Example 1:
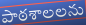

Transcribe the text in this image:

పాఠశాలలను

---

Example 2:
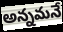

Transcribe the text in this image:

అన్నమనే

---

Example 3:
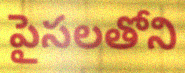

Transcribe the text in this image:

పైసలతోని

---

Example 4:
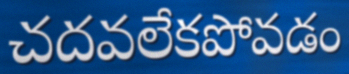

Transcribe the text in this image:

చదవలేకపోవడం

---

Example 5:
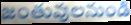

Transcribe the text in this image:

జంతువులనుండి